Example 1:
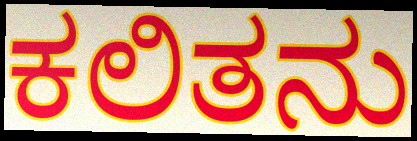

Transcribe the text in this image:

ಕಲಿತನು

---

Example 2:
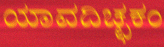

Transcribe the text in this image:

ಯಾವದಿಚ್ಛಕಂ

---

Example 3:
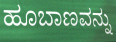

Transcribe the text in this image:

ಹೂಬಾಣವನ್ನು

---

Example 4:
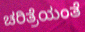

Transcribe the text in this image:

ಚರಿತ್ರೆಯಂತೆ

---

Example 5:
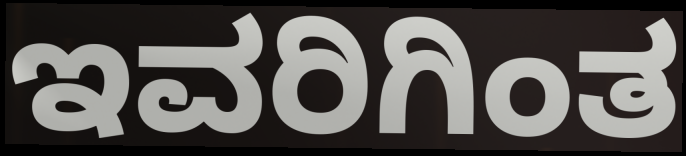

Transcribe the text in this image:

ಇವರಿಗಿಂತ